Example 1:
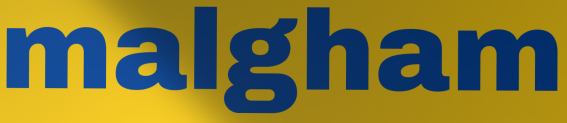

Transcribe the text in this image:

malgham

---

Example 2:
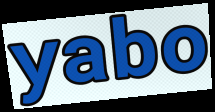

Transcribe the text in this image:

yabo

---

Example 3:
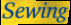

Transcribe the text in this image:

Sewing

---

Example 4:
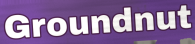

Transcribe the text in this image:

Groundnut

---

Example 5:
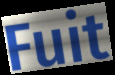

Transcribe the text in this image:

Fuit